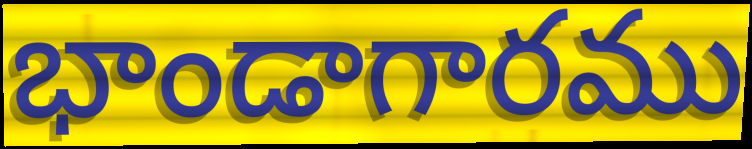
భాండాగారము